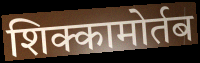
शिक्‍कामोर्तब